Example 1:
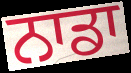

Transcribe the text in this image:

ਨਾਡਾ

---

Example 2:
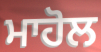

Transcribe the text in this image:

ਮਾਹੋਲ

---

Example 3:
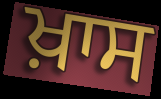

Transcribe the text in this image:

ਖ਼ਾਸ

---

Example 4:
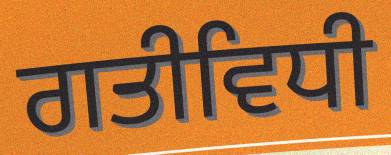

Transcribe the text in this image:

ਗਤੀਵਿਧੀ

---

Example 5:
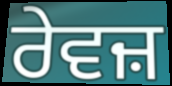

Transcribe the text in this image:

ਰੇਵਜ਼